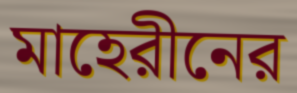
মাহেরীনের